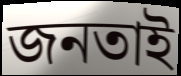
জনতাই